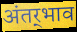
अंतर्भाव